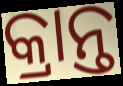
କ୍ରାନ୍ତ